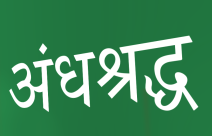
अंधश्रद्ध